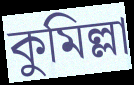
কুমিল্লা